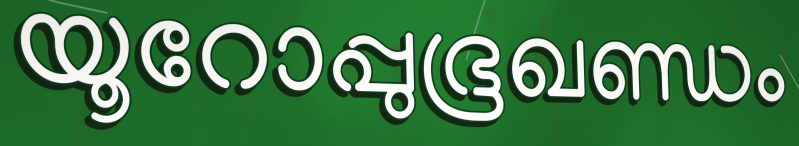
യൂറോപ്പുഭൂഖണ്ഡം